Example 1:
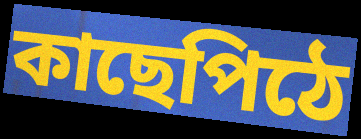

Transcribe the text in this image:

কাছেপিঠে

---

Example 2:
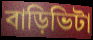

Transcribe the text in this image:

বাড়িভিটা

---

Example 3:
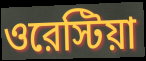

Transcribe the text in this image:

ওরেস্টিয়া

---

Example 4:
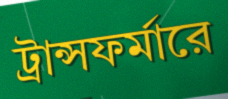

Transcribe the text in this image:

ট্রান্সফর্মারে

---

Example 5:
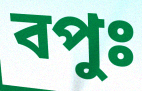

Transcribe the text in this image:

বপুঃ